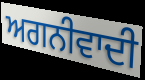
ਅਗਨੀਵਾਦੀ